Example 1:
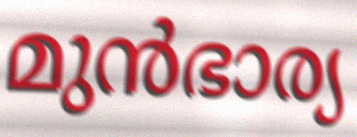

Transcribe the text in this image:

മുൻഭാര്യ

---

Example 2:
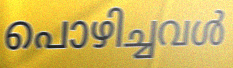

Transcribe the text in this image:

പൊഴിച്ചവൾ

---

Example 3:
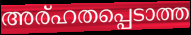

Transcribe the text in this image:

അര്ഹതപ്പെടാത്ത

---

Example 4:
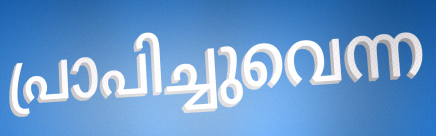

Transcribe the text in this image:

പ്രാപിച്ചുവെന്ന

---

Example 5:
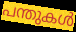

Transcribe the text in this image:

പന്തുകൾ